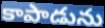
కాపాడును